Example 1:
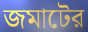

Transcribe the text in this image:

জমাটের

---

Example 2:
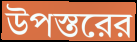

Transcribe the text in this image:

উপস্তরের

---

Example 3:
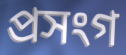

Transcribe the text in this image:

প্রসংগ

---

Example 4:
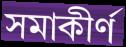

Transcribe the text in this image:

সমাকীর্ণ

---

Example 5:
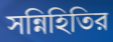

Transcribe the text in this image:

সন্নিহিতির